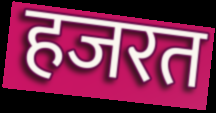
हजरत